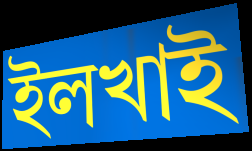
ইলখাই